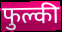
फुल्की